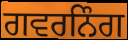
ਗਵਰਨਿੰਗ